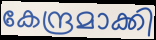
കേന്ദ്രമാക്കി